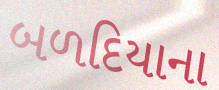
બળદિયાના